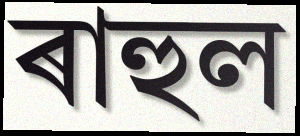
ৰাহুল